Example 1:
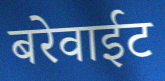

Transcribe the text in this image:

बरेवाईट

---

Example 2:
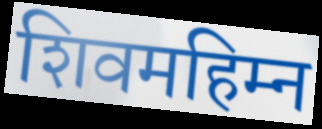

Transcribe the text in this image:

शिवमहिम्न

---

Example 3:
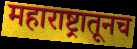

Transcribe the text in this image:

महाराष्ट्रातूनच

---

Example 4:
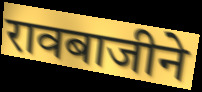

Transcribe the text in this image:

रावबाजीने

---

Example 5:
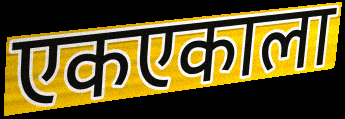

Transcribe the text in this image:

एकएकाला